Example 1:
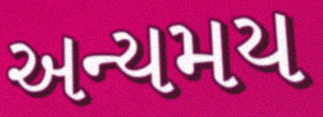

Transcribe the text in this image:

અન્યમય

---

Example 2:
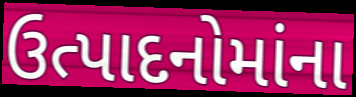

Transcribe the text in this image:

ઉત્પાદનોમાંના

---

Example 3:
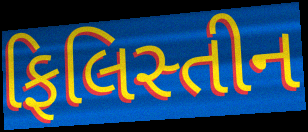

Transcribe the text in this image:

ફિલિસ્તીન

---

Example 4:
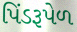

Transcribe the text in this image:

પિંડરૂપેળ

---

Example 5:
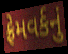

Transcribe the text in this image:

ફ્રેમવર્કનું